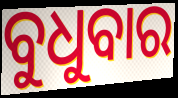
ବୁଧୁବାର